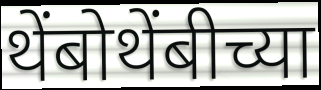
थेंबोथेंबीच्या